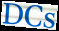
DCs